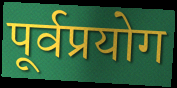
पूर्वप्रयोग